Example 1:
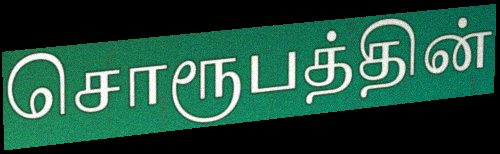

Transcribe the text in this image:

சொரூபத்தின்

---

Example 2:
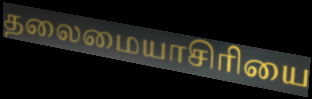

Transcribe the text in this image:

தலைமையாசிரியை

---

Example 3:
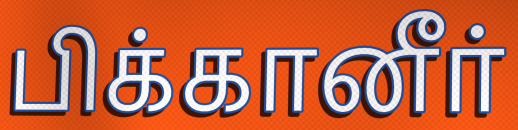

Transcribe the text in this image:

பிக்கானீர்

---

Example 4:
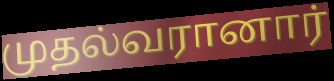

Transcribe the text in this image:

முதல்வரானார்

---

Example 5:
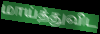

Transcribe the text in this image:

மாய்த்துவிட